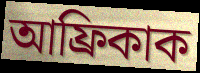
আফ্ৰিকাক